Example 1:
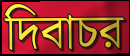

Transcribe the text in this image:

দিবাচর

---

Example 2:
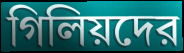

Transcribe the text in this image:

গিলিয়দের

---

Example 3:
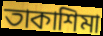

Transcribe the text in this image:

তাকাশিমা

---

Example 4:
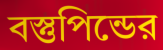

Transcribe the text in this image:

বস্তুপিন্ডের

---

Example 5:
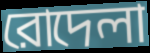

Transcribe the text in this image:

রোদেলা